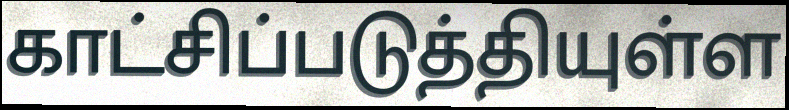
காட்சிப்படுத்தியுள்ள